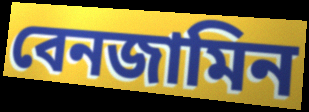
বেনজামিন